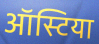
ऑस्टिया